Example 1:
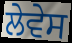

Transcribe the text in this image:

ਲੇਵੇਸ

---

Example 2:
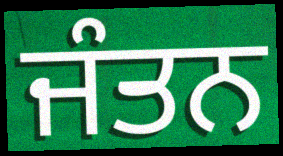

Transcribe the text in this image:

ਜੰਤਨ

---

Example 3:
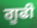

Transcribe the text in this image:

ਗੂਫੀ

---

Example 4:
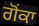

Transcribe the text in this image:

ਗੋਂਕਾ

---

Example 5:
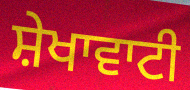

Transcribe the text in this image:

ਸ਼ੇਖਾਵਾਟੀ